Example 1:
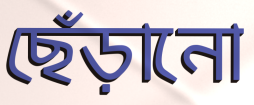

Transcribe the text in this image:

ছেঁড়ানো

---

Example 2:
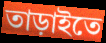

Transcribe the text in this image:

তাড়াইতে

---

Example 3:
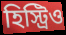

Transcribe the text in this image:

হিস্ট্রিও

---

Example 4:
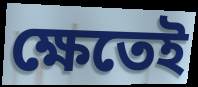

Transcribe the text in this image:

ক্ষেতেই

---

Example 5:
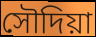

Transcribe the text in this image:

সৌদিয়া